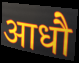
आधौ